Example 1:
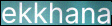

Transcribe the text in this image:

ekkhana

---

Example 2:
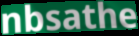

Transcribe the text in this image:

nbsathe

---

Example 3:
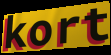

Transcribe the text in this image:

kort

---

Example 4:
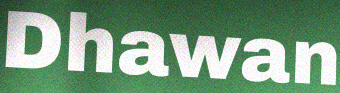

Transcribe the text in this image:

Dhawan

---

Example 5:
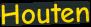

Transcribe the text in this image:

Houten